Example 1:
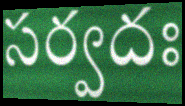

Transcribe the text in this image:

సర్వదః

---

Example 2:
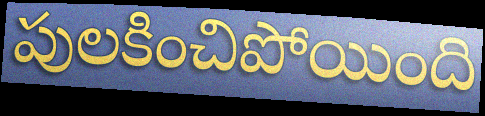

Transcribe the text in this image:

పులకించిపోయింది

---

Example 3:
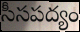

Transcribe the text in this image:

సీసపద్యం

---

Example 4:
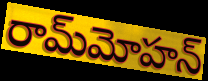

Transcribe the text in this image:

రామ్‌మోహన్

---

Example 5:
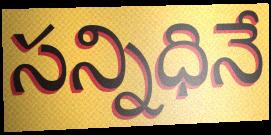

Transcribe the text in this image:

సన్నిధినే